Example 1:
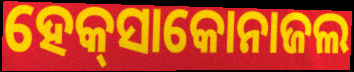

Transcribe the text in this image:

ହେକ୍‌ସାକୋନାଜଲ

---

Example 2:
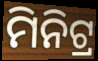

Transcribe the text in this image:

ମିନିଟ୍ର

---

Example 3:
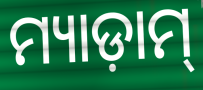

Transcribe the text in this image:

ମ୍ୟାଡ଼ାମ୍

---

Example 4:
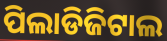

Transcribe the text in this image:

ପିଲାଡିଜିଟାଲ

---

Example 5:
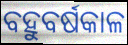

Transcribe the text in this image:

ବହୁବର୍ଷକାଳ